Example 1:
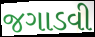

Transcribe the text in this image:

જગાડવી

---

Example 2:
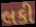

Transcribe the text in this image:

લકી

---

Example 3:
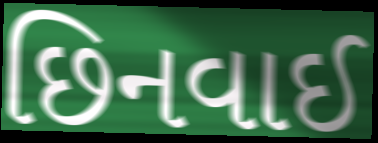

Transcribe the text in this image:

છિનવાઈ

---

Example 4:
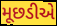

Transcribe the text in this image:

મૂછડીએ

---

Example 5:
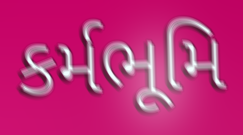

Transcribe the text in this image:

કર્મભૂમિ